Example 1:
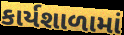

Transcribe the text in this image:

કાર્યશાળામાં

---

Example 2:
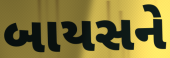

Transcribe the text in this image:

બાયસને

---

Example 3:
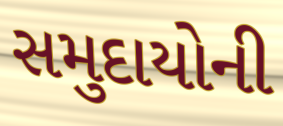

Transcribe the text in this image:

સમુદાયોની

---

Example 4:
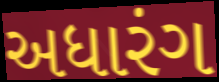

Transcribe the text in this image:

અધારંગ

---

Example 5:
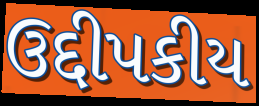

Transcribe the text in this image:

ઉદ્દીપકીય